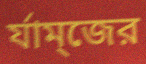
র্যাম্জের